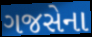
ગજસેના